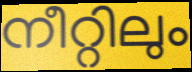
നീറ്റിലും